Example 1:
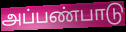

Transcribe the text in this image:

அப்பண்பாடு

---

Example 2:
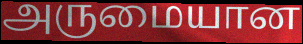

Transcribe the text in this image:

அருமையான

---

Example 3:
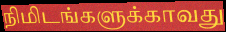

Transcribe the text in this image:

நிமிடங்களுக்காவது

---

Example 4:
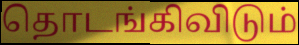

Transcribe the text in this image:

தொடங்கிவிடும்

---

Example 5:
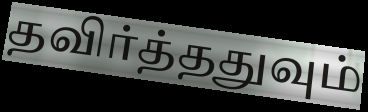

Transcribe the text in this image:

தவிர்த்ததுவும்